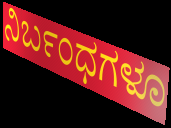
ನಿರ್ಬಂಧಗಳೂ